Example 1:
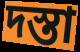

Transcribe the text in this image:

দস্তা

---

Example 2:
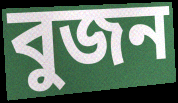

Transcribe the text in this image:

বুজন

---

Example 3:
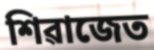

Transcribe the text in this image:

শিৱাজেত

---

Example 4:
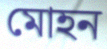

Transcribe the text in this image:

মোহন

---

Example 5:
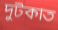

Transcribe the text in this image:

দুটকাত